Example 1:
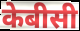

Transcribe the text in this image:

केबीसी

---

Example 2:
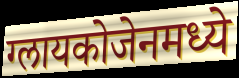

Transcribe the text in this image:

ग्लायकोजेनमध्ये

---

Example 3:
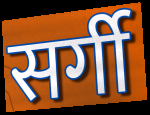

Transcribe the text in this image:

सर्गी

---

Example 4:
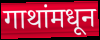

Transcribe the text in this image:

गाथांमधून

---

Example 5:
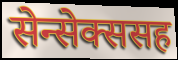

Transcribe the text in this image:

सेन्सेक्ससह